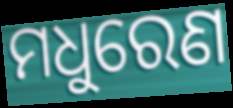
ମଧୁରେଣ